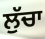
ਲੁੱਚਾ